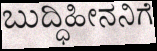
ಬುದ್ಧಿಹೀನನಿಗೆ